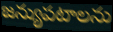
జన్యుపటాలను